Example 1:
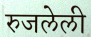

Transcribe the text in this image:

रुजलेली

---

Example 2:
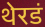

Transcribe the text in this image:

थेरडं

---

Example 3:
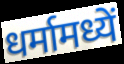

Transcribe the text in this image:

धर्मामध्यें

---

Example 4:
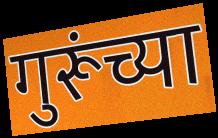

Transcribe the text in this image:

गुरूंच्या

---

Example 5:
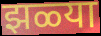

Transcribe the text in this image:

झळ्या